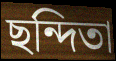
ছন্দিতা